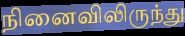
நினைவிலிருந்து